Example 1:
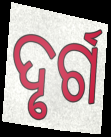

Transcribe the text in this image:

ଦୃର୍ଗ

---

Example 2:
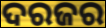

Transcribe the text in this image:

ଦରଜର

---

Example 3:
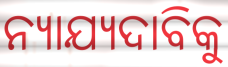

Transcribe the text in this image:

ନ୍ୟାଯ୍ୟଦାବିକୁ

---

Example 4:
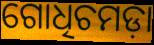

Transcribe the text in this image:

ଗୋଧିଚମଡ଼ା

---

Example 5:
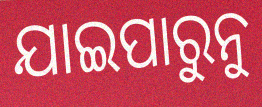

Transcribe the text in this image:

ଯାଇପାରୁନୁ